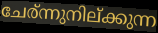
ചേര്ന്നുനില്ക്കുന്ന